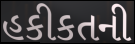
હકીકતની